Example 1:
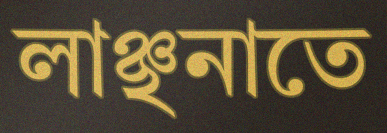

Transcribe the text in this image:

লাঞ্ছনাতে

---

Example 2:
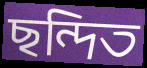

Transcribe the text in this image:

ছন্দিত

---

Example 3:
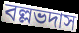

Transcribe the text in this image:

বল্লভদাস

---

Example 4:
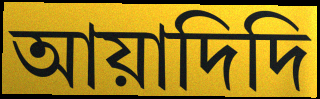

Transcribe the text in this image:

আয়াদিদি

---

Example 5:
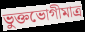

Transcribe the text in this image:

ভুক্তভোগীমাত্র